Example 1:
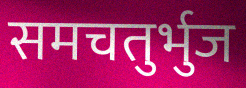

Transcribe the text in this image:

समचतुर्भुज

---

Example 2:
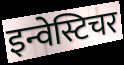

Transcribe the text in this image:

इन्वेस्टिचर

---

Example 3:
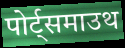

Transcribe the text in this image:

पोर्ट्समाउथ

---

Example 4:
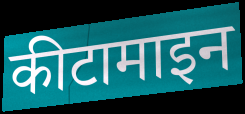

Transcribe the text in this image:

कीटामाइन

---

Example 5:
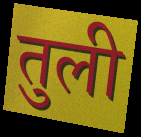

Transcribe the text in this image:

तुली